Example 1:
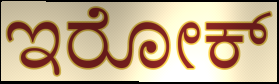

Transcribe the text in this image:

ಇರೋಕ್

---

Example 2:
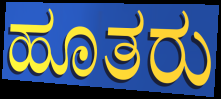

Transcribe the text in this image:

ಹೂತರು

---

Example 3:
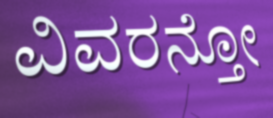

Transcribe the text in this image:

ವಿವರನ್ತೋ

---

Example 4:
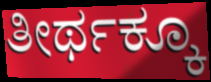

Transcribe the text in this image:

ತೀರ್ಥಕ್ಕೂ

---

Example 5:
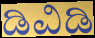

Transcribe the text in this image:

ಡಿವಿಡಿ